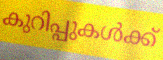
കുറിപ്പുകൾക്ക്